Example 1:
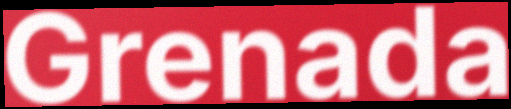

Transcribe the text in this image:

Grenada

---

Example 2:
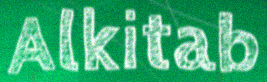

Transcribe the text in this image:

Alkitab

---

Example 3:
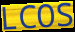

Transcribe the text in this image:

LCOS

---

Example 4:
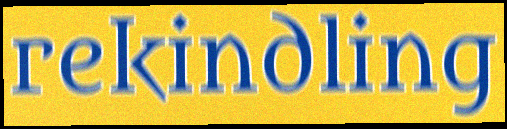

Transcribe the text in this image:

rekindling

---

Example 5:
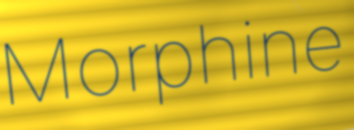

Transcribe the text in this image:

Morphine